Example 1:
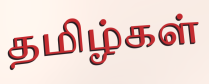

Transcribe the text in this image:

தமிழ்கள்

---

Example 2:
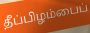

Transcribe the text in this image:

தீப்பிழம்பைப்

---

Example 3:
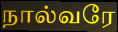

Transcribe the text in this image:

நால்வரே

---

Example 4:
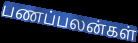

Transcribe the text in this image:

பணப்பலன்கள்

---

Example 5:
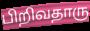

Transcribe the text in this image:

பிறிவதாரு